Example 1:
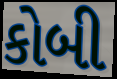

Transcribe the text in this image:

કોબી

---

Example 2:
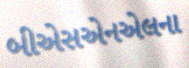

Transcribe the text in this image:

બીએસએનએલના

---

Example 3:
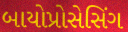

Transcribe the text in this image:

બાયોપ્રોસેસિંગ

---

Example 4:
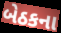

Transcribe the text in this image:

બેઠકના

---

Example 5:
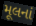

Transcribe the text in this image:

મૂલનાં